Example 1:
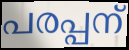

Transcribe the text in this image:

പരപ്പന്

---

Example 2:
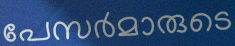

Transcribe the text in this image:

പേസർമാരുടെ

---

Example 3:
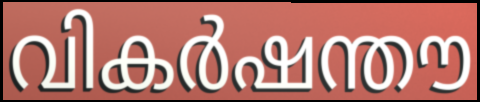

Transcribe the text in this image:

വികർഷന്തൗ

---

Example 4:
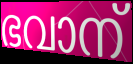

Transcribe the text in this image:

ഭവാന്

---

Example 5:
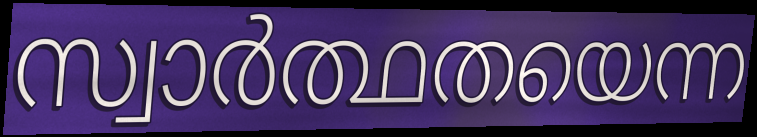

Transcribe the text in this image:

സ്വാർത്ഥതയെന്ന